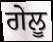
ਗੇਲੂ